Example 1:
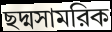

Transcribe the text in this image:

ছদ্মসামরিক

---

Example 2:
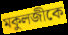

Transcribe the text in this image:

মকুলজীকে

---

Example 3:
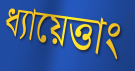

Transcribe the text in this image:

ধ্যায়েত্তাং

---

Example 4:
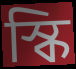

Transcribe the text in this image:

স্কি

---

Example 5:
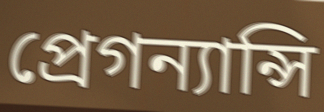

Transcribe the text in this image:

প্রেগন্যান্সি